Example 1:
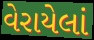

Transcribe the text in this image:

વેરાયેલાં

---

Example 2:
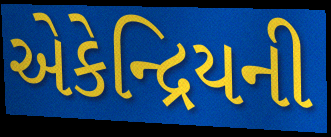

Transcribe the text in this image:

એકેન્દ્રિયની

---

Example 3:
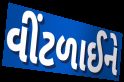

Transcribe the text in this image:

વીંટળાઈને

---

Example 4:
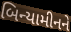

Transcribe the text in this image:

બિન્યામીનને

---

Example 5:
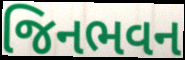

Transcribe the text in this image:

જિનભવન